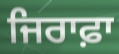
ਜਿਰਾਫ਼ਾ